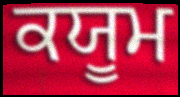
ਕਯੂਮ